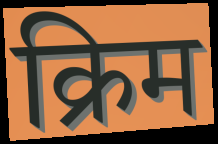
क्रिम